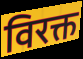
विरक्त